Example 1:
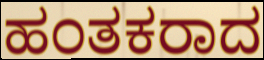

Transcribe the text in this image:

ಹಂತಕರಾದ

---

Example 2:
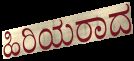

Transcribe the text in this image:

ಹಿರಿಯರಾದ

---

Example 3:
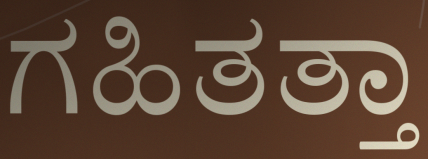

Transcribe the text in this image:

ಗಹಿತತ್ತಾ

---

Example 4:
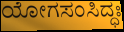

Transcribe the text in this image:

ಯೋಗಸಂಸಿದ್ಧಃ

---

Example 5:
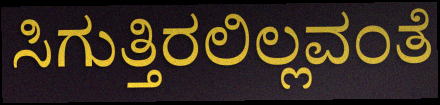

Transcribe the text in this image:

ಸಿಗುತ್ತಿರಲಿಲ್ಲವಂತೆ